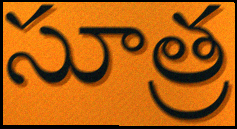
సూత్ర